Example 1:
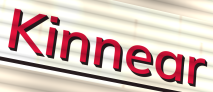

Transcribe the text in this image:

Kinnear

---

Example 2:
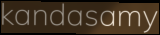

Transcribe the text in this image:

kandasamy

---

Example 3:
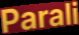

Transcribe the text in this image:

Parali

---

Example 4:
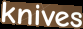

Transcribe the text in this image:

knives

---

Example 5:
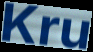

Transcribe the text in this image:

Kru